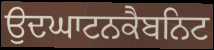
ਉਦਘਾਟਨਕੈਬਨਿਟ